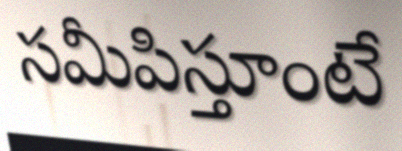
సమీపిస్తూంటే